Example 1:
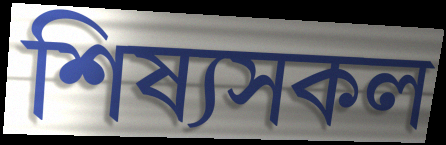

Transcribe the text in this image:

শিষ্যসকল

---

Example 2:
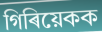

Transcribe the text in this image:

গিৰিয়েকক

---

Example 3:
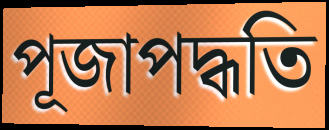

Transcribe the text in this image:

পূজাপদ্ধতি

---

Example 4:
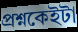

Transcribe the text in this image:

প্ৰশ্নকেইটা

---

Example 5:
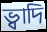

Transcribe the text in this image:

ভ্বাদি